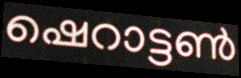
ഷെറാട്ടൺ